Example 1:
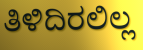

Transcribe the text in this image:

ತಿಳಿದಿರಲಿಲ್ಲ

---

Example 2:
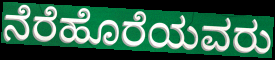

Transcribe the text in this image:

ನೆರೆಹೊರೆಯವರು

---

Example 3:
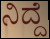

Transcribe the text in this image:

ನಿದ್ದೆ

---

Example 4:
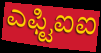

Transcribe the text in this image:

ಎಫ್ಟಿಐಐ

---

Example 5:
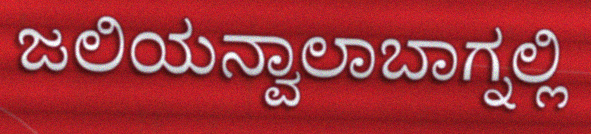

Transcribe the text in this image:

ಜಲಿಯನ್ವಾಲಾಬಾಗ್ನಲ್ಲಿ